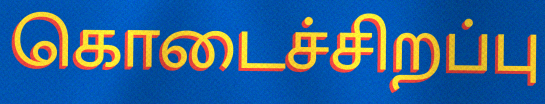
கொடைச்சிறப்பு